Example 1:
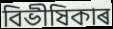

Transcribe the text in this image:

বিভীষিকাৰ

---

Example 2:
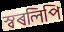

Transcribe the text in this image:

স্বৰলিপি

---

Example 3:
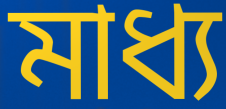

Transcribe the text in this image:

মাধ্য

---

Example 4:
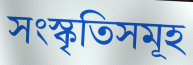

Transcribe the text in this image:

সংস্কৃতিসমূহ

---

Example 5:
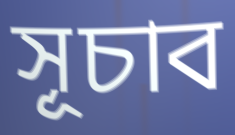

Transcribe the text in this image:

সূচাব